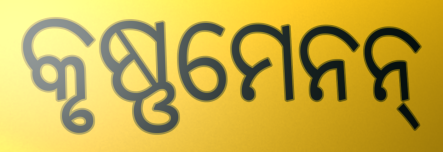
କୃଷ୍ଣମେନନ୍